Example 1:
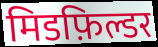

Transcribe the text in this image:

मिडफ़िल्डर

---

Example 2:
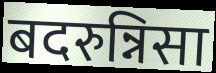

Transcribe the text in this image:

बदरुन्निसा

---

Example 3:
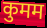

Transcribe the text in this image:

कुमम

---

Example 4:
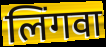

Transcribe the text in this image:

लिंगवा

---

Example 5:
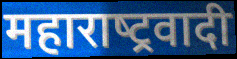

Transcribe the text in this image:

महाराष्ट्रवादी